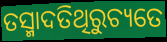
ତସ୍ମାଦତିଥିରୁଚ୍ୟତେ